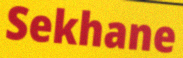
Sekhane